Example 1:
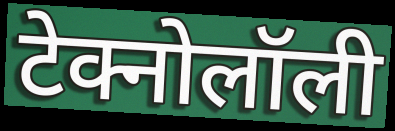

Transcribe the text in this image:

टेक्नोलॉली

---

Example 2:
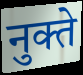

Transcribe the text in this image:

नुक्ते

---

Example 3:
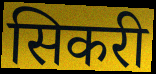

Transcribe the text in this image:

सिकरी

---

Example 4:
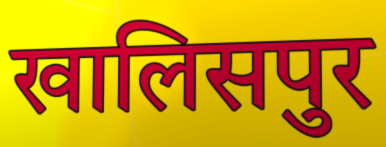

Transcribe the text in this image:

खालिसपुर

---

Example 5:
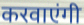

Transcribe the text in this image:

करवाएंगी